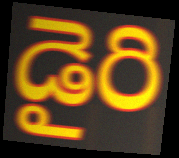
డైరి